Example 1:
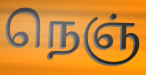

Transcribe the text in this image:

நெஞ்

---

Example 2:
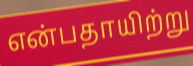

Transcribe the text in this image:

என்பதாயிற்று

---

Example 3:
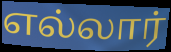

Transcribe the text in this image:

எல்லார்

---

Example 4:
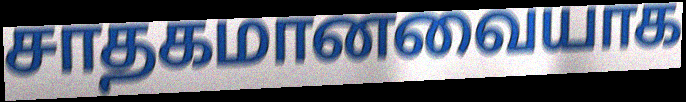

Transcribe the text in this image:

சாதகமானவையாக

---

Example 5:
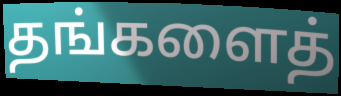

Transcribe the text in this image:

தங்களைத்